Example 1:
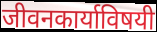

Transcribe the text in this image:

जीवनकार्याविषयी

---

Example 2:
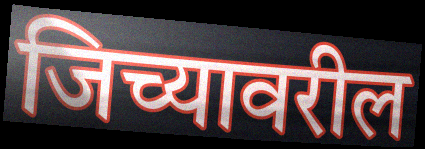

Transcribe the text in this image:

जिच्यावरील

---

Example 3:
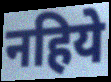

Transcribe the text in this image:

नहिये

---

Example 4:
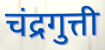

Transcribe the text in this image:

चंद्रगुत्ती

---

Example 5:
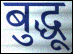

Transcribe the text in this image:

बुद्धू